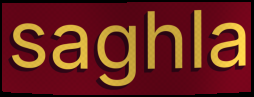
saghla